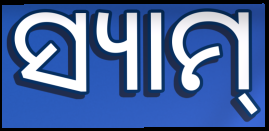
ସ୍ୟାମ୍